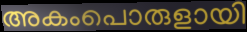
അകംപൊരുളായി